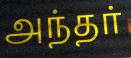
அந்தர்